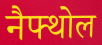
नैफ्थोल